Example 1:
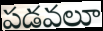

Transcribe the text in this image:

పడవలూ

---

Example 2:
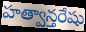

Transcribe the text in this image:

హత్వాన్తరేషు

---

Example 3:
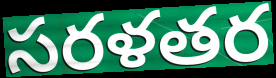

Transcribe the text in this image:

సరళతర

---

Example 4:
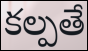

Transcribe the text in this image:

కల్పతే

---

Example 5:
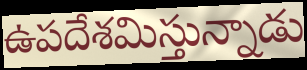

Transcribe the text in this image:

ఉపదేశమిస్తున్నాడు